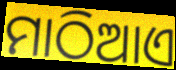
ମାଠିଆଏ